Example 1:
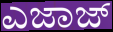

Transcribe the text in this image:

ಎಜಾಜ್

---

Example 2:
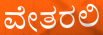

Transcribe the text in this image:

ವೇತರಲಿ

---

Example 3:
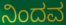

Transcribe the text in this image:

ನಿಂದವ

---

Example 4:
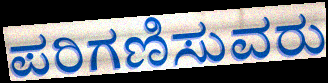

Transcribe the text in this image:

ಪರಿಗಣಿಸುವರು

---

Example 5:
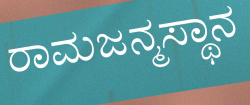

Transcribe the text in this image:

ರಾಮಜನ್ಮಸ್ಥಾನ